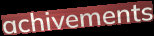
achivements